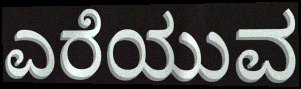
ಎರೆಯುವ